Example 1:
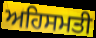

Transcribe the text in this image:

ਅਹਿਸਮਤੀ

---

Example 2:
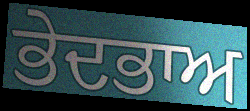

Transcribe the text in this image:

ਭੇਦਭਾਅ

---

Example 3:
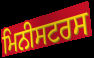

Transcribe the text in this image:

ਮਿਨੀਸਟਰਸ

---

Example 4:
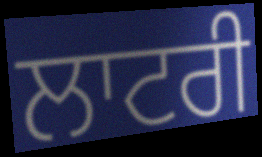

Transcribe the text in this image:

ਲਾਟਰੀ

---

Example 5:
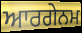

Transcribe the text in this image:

ਆਰਗੇਨਮ